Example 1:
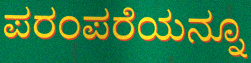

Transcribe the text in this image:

ಪರಂಪರೆಯನ್ನೂ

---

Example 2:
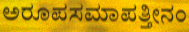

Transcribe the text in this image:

ಅರೂಪಸಮಾಪತ್ತೀನಂ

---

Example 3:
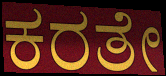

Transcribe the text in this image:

ಕರತೇ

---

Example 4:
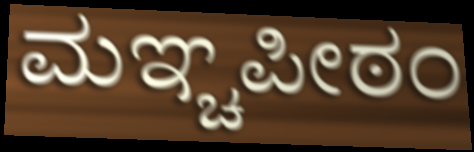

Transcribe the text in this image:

ಮಞ್ಚಪೀಠಂ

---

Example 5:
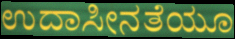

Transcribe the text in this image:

ಉದಾಸೀನತೆಯೂ